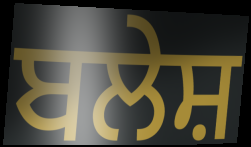
ਬਲੇਸ਼